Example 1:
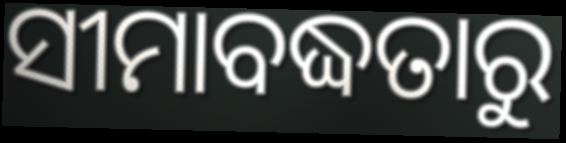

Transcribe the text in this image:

ସୀମାବଦ୍ଧତାରୁ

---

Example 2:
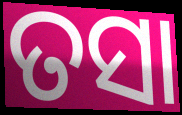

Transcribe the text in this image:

ତସା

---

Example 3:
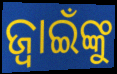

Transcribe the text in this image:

ଜ୍ବାଇଁଙ୍କୁ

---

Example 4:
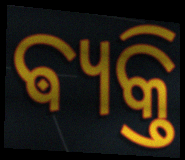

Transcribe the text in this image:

ଵ୍ଯକ୍ତି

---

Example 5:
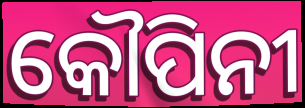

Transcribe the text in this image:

କୌପିନୀ